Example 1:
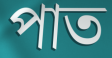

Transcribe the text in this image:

পাত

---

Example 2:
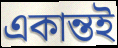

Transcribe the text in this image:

একান্তই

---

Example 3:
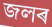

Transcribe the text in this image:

জলৰ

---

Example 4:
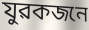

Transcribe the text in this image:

যুৱকজনে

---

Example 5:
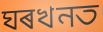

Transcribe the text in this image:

ঘৰখনত